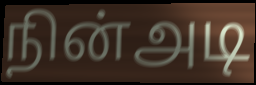
நின்அடி